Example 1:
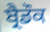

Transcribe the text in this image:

ਬ੍ਰੈਡੌਕ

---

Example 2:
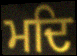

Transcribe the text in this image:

ਮਦਿ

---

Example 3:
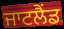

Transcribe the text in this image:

ਜਾਟਲੈਂਡ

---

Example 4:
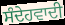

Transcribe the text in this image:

ਸੰਦੇਹਵਾਦੀ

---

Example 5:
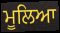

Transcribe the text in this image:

ਮੂਲਿਆ